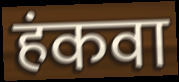
हंकवा